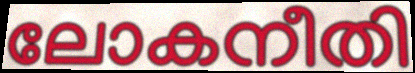
ലോകനീതി